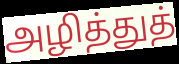
அழித்துத்